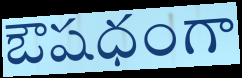
ఔషధంగా